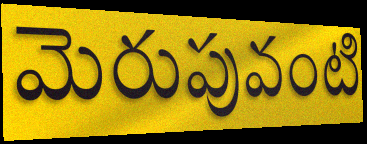
మెరుపువంటి